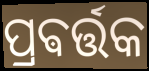
ପ୍ରଵର୍ତ୍ତକ